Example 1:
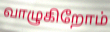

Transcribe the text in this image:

வாழுகிறோம்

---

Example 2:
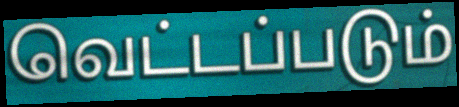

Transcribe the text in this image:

வெட்டப்படும்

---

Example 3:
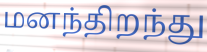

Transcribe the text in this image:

மனந்திறந்து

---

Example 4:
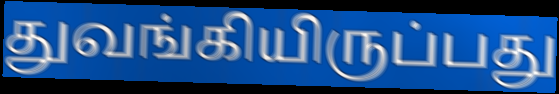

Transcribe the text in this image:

துவங்கியிருப்பது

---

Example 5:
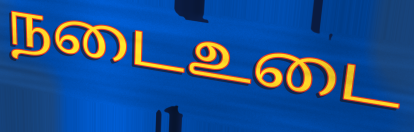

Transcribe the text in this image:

நடைஉடை